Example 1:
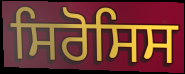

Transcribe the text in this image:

ਸਿਰੋਸਿਸ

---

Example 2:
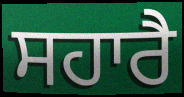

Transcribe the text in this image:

ਸਹਾਰੈ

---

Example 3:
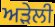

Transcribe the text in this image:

ਅੜੇਲੀ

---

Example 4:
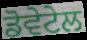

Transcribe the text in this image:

ਡੋਵੇਟੇਲ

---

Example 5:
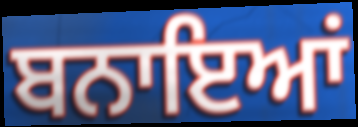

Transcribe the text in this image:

ਬਨਾਇਆਂ